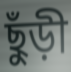
ছুঁড়ী